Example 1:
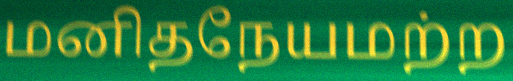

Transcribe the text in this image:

மனிதநேயமற்ற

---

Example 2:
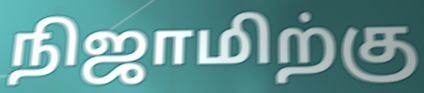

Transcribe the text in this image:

நிஜாமிற்கு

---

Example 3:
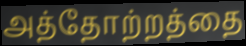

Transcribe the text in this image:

அத்தோற்றத்தை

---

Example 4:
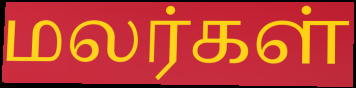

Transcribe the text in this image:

மலர்கள்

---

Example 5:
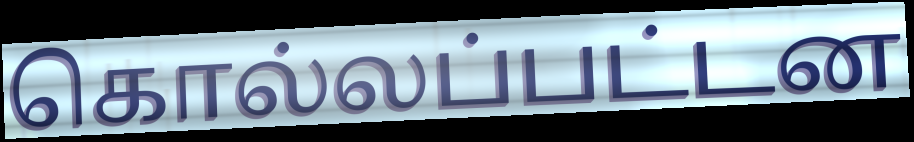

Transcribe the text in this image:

கொல்லப்பட்டன